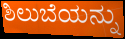
ಶಿಲುಬೆಯನ್ನು